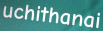
uchithanai